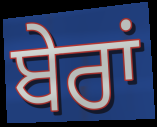
ਬੇਰਾਂ